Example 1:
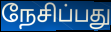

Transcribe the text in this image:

நேசிப்பது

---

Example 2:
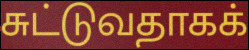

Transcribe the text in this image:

சுட்டுவதாகக்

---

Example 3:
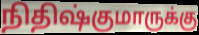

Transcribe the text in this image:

நிதிஷ்குமாருக்கு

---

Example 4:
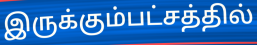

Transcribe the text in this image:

இருக்கும்பட்சத்தில்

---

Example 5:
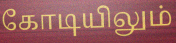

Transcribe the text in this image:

கோடியிலும்